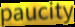
paucity